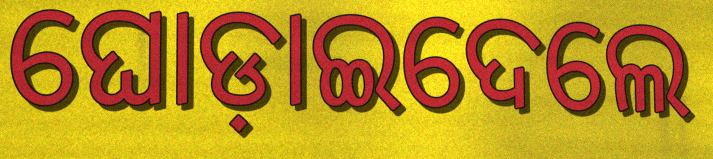
ଘୋଡ଼ାଇଦେଲେ